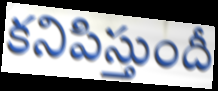
కనిపిస్తుందీ